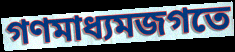
গণমাধ্যমজগতে